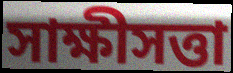
সাক্ষীসত্তা